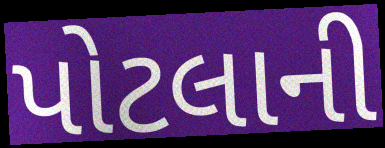
પોટલાની